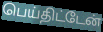
பெய்திட்டேன்